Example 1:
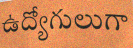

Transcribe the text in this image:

ఉద్యోగులుగా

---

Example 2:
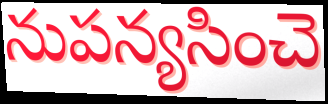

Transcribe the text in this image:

నుపన్యసించె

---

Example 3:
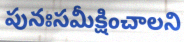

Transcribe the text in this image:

పునఃసమీక్షించాలని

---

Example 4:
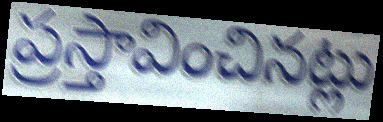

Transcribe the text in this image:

ప్రస్తావించినట్లు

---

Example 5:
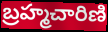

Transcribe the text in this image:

బ్రహ్మచారిణి